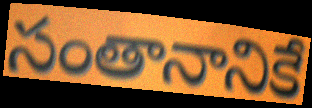
సంతానానికే